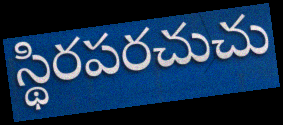
స్థిరపరచుచు